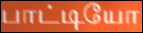
பாட்டியோ